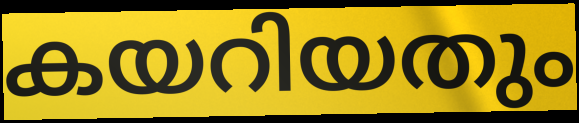
കയറിയതും